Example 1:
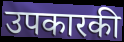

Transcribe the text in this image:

उपकारकी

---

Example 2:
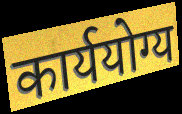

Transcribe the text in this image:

कार्ययोग्य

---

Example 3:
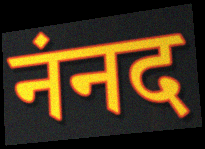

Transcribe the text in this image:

नंनद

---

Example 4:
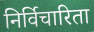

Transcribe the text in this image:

निर्विचारिता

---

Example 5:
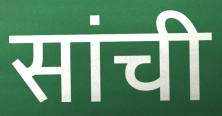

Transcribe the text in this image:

सांची